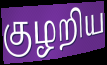
குழறிய